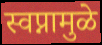
स्वप्नामुळे